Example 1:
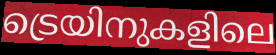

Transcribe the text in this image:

ട്രെയിനുകളിലെ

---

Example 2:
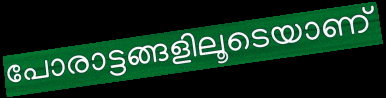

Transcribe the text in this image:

പോരാട്ടങ്ങളിലൂടെയാണ്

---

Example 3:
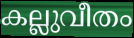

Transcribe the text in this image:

കല്ലുവീതം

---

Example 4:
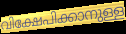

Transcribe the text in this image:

വിക്ഷേപിക്കാനുള്ള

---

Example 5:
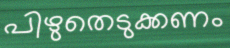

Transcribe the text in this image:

പിഴുതെടുക്കണം